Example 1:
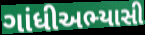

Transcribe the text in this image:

ગાંધીઅભ્યાસી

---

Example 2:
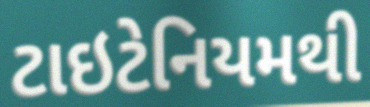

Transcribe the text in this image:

ટાઇટેનિયમથી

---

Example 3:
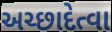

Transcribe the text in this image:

અચ્છાદેત્વા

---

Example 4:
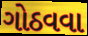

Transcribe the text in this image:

ગોઠવવા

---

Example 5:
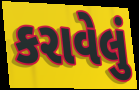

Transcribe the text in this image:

કરાવેલું